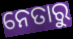
ନେତାରୁ